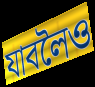
যাবলৈও